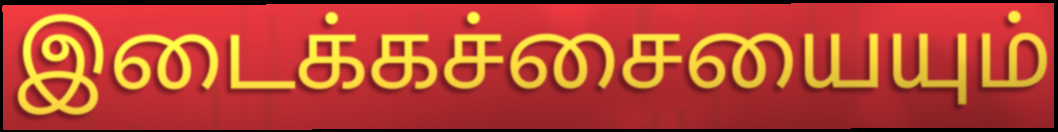
இடைக்கச்சையையும்